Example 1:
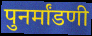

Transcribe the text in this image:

पुनर्मांडणी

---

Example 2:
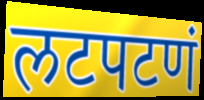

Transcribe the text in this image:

लटपटणं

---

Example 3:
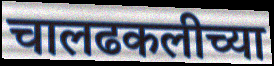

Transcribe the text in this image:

चालढकलीच्या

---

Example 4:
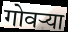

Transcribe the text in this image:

गोवर्‍या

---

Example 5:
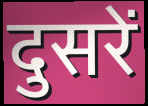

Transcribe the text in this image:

दुसरें